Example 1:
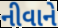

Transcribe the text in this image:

નીવાને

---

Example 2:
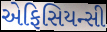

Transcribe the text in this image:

એફિસિયન્સી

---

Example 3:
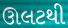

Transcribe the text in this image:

ઊલટથી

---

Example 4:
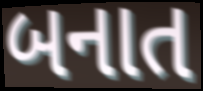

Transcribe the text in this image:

બનાત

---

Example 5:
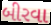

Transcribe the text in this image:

બીરવા